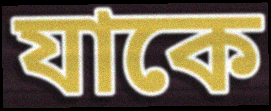
যাকে